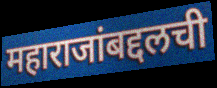
महाराजांबद्दलची